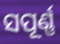
ସପୂର୍ଣ୍ଣ